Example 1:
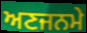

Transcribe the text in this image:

ਅਣਜਨਮੇ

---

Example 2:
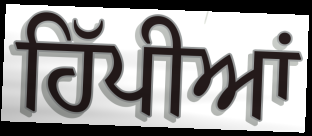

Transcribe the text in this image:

ਹਿੱਪੀਆਂ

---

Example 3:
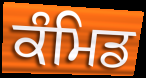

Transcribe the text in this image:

ਕੰਮਿਡ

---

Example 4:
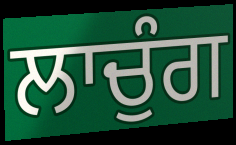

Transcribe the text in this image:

ਲਾਚੁੰਗ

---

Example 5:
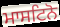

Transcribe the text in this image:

ਮਾਸਟਿਨੋ